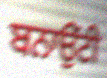
ਬਨਾਉਂਟੀ